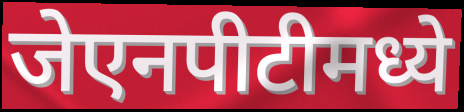
जेएनपीटीमध्ये